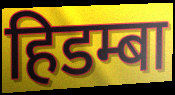
हिडम्बा